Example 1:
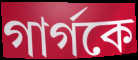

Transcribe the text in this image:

গার্গকে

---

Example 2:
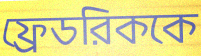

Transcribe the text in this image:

ফ্রেডরিককে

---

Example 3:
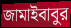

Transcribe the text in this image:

জামাইবাবুর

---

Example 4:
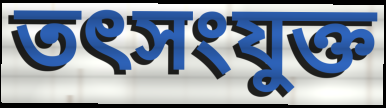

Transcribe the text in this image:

তৎসংযুক্ত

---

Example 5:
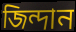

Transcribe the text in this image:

জিন্দান